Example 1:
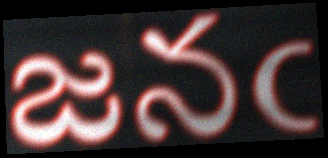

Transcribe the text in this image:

జనఁ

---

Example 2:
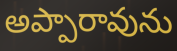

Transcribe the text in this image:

అప్పారావును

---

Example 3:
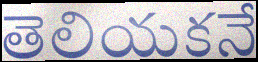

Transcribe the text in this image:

తెలియకనే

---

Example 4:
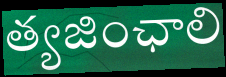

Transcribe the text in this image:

త్యజింఛాలి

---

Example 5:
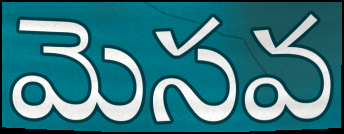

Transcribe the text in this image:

మెసవ